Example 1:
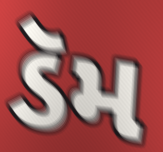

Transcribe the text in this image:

ડૅમ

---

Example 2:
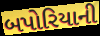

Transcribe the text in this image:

બપોરિયાની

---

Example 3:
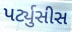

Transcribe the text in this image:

પર્ટ્યુસીસ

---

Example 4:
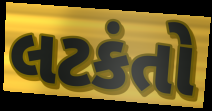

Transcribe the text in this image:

લટકંતો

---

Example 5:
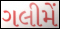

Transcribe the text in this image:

ગલીમેં